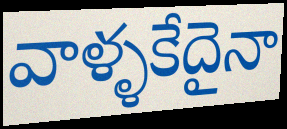
వాళ్ళకేదైనా